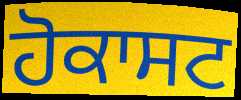
ਹੋਕਾਸਟ